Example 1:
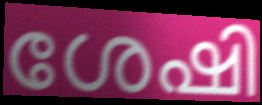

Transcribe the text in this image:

ശേഷി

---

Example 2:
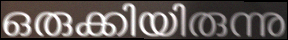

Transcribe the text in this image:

ഒരുക്കിയിരുന്നു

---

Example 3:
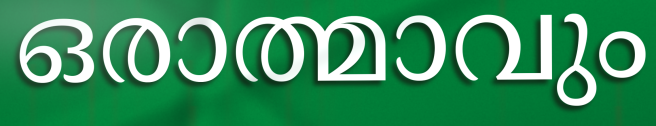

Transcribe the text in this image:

ഒരാത്മാവും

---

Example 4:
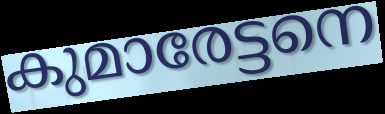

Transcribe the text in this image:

കുമാരേട്ടനെ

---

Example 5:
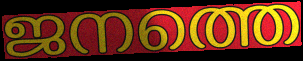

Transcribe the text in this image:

ജനത്തെ